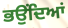
ਭਉਂਦਿਆਂ